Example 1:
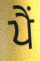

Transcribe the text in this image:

ਪੈਂ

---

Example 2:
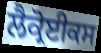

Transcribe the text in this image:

ਲੈਕ੍ਰੋਈਕਸ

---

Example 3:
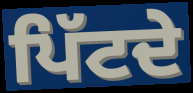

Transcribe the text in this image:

ਪਿੱਟਦੇ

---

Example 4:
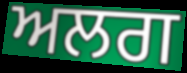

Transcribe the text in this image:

ਅਲਗ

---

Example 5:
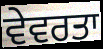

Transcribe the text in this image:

ਵੇਵਰਤਾ